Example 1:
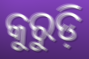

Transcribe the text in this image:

କୁରୁଡ଼ି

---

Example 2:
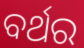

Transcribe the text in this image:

ବର୍ଥର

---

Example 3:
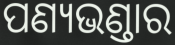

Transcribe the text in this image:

ପଣ୍ୟଭଣ୍ଡାର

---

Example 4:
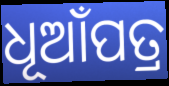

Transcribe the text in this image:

ଧୂଆଁପତ୍ର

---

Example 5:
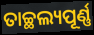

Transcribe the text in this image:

ତାଚ୍ଛଲ୍ୟପୂର୍ଣ୍ଣ